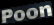
Poon